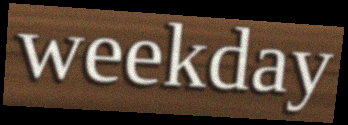
weekday